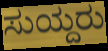
ಸುಯ್ದರು